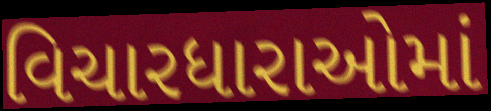
વિચારધારાઓમાં